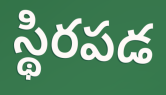
స్థిరపడ